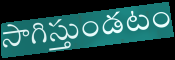
సాగిస్తుండటం